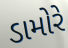
ડામોરે